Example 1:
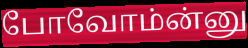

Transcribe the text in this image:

போவோம்ன்னு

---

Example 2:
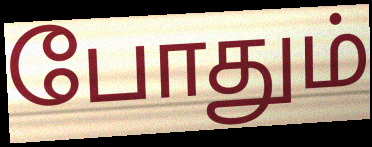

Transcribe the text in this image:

போதும்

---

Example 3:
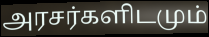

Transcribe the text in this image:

அரசர்களிடமும்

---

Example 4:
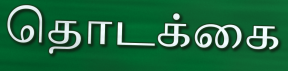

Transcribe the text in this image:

தொடக்கை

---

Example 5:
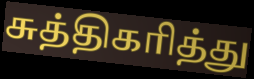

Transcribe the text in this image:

சுத்திகரித்து